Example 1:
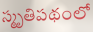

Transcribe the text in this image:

స్మృతిపథంలో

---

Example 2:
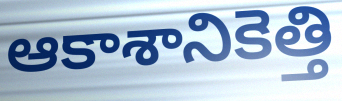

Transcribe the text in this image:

ఆకాశానికెత్తి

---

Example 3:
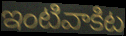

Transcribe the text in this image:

ఇంటివాకిట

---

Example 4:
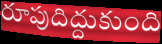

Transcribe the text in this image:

రూపుదిద్దుకుంది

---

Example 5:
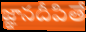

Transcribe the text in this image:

జ్ఞానదీపితే